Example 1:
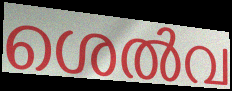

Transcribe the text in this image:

ശെൽവ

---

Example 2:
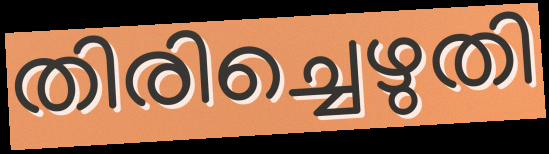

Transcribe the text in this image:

തിരിച്ചെഴുതി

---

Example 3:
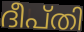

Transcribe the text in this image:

ദീപ്തി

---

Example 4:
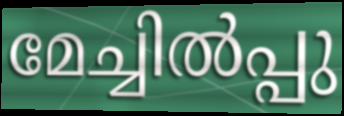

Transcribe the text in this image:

മേച്ചിൽപ്പു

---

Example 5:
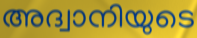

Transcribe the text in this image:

അദ്വാനിയുടെ